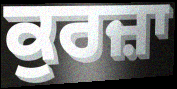
ਕੁਰਜ਼ਾ